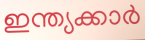
ഇന്ത്യക്കാർ